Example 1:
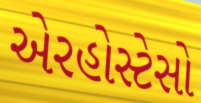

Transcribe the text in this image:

એરહોસ્ટેસો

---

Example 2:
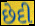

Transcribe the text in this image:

છેદી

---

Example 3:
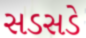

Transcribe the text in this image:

સડસડે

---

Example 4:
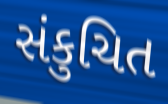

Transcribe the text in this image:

સંકુચિત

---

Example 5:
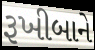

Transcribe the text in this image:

રૂખીબાને